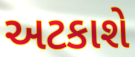
અટકાશે